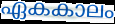
ഏകകാലം